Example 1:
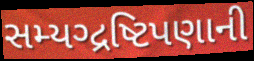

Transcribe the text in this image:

સમ્યગ્દ્રષ્ટિપણાની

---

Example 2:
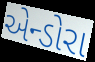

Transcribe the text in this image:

એન્ડોરા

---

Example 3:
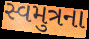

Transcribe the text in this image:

સ્વમુત્રના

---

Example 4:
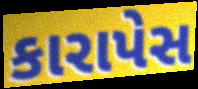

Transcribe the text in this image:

કારાપેસ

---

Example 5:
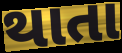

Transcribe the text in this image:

થાતા